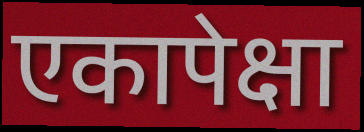
एकापेक्षा